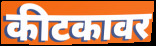
कीटकावर